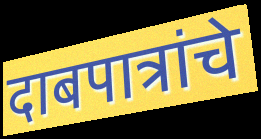
दाबपात्रांचे